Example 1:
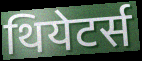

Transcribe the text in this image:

थियेटर्स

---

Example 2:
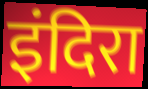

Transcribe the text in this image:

इंदिरा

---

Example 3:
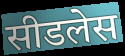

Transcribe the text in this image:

सीडलेस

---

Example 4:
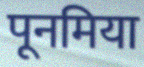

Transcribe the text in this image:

पूनमिया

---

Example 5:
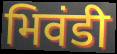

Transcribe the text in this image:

भिवंडी